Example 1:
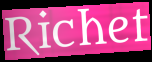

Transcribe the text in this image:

Richet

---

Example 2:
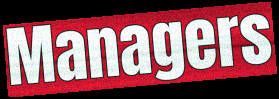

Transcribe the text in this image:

Managers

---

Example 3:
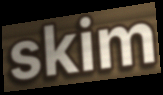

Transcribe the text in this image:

skim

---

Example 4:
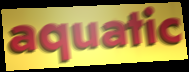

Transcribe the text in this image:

aquatic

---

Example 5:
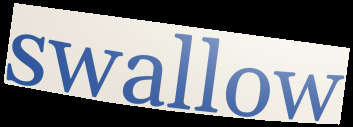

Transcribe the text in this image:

swallow